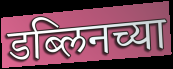
डब्लिनच्या